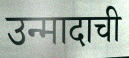
उन्मादाची